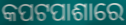
କପଟପାଶାରେ